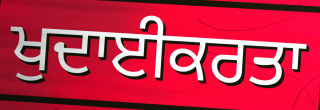
ਖੁਦਾਈਕਰਤਾ